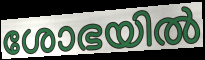
ശോഭയിൽ